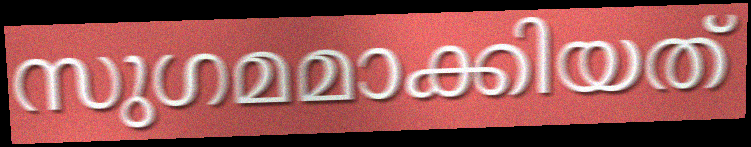
സുഗമമാക്കിയത്